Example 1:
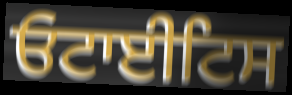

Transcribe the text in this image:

ਓਟਾਈਟਿਸ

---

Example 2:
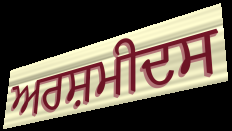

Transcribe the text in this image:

ਅਰਸ਼ਮੀਦਸ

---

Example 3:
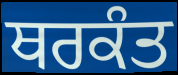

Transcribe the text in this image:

ਥਰਕੰਤ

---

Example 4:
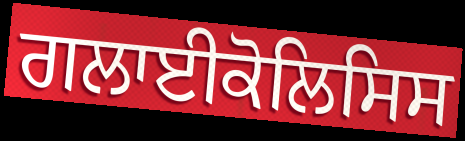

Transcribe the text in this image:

ਗਲਾਈਕੋਲਿਸਿਸ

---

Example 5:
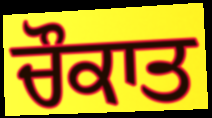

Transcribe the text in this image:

ਚੌਕਾਤ